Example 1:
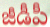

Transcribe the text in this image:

జీడీపీ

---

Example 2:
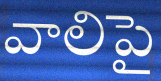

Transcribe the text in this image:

వాలిపై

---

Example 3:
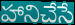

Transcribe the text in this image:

హానిచేసే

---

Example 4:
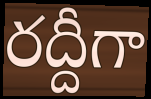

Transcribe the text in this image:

రద్దీగా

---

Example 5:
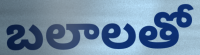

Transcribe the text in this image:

బలాలతో